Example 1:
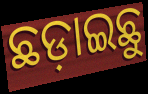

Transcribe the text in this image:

ଛଡ଼ାଇଛୁ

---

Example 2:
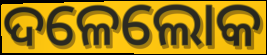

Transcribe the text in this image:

ଦଳେଲୋକ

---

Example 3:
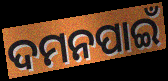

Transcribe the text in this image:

ଦମନପାଇଁ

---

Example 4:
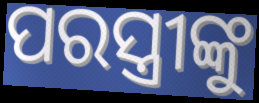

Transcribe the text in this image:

ପରସ୍ତ୍ରୀଙ୍କୁ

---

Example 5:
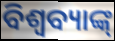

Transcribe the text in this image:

ବିଶ୍ଵବ୍ୟାଙ୍କ୍